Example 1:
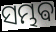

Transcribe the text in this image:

ସମ୍ଭଵ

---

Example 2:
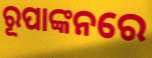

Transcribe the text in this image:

ରୂପାଙ୍କନରେ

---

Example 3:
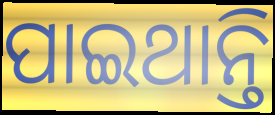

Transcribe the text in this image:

ପାଇଥାନ୍ତି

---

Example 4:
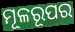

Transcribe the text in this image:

ମୂଳରୂପର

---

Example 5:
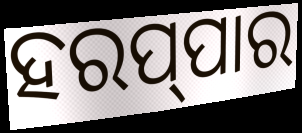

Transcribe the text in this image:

ହରପ୍‌ପାର